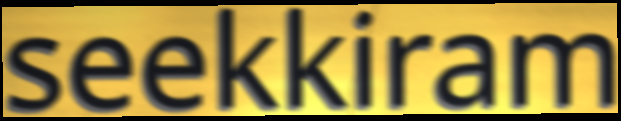
seekkiram